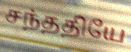
சந்ததியே